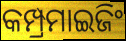
କମ୍ପ୍ରମାଇଜିଂ